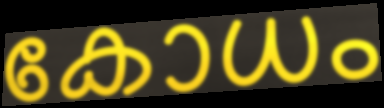
കോധം